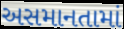
અસમાનતામાં